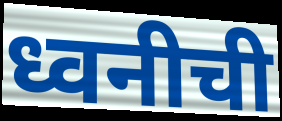
ध्वनीची